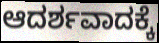
ಆದರ್ಶವಾದಕ್ಕೆ